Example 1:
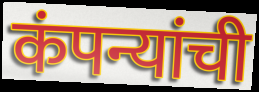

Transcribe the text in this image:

कंपन्यांची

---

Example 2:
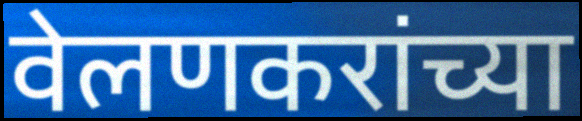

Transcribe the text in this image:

वेलणकरांच्या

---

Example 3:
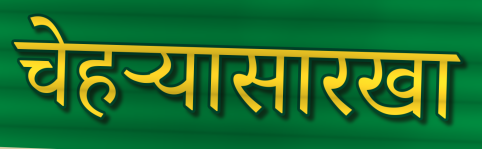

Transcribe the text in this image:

चेहऱ्यासारखा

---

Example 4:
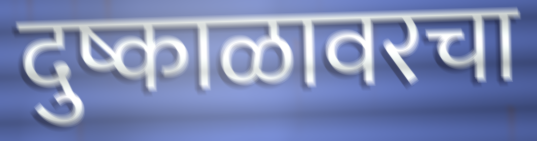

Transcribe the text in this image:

दुष्काळावरचा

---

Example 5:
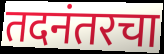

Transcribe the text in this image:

तदनंतरचा